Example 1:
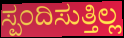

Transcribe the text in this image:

ಸ್ಪಂದಿಸುತ್ತಿಲ್ಲ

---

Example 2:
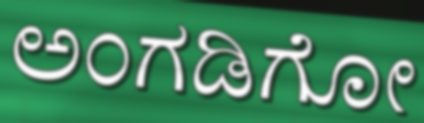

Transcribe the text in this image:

ಅಂಗಡಿಗೋ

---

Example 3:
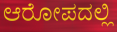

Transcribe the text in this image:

ಆರೋಪದಲ್ಲಿ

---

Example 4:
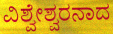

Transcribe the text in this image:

ವಿಶ್ವೇಶ್ವರನಾದ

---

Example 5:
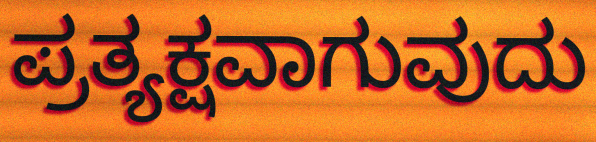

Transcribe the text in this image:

ಪ್ರತ್ಯಕ್ಷವಾಗುವುದು